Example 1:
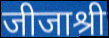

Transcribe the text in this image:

जीजाश्री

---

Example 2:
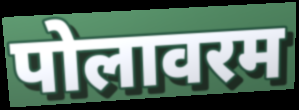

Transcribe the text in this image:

पोलावरम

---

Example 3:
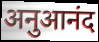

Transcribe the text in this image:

अनुआनंद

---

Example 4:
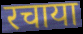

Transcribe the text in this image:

रचाया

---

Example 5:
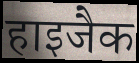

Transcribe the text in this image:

हाइजैक